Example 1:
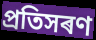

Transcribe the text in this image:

প্ৰতিসৰণ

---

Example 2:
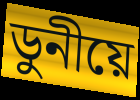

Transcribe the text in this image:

ডুনীয়ে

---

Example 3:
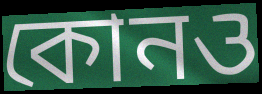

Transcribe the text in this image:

কোনও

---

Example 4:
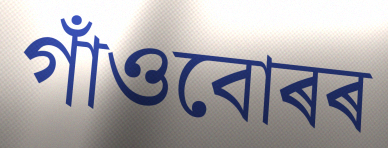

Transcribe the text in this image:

গাঁওবোৰৰ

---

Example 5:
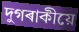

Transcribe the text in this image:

দুগৰাকীয়ে